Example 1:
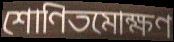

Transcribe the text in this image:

শোণিতমোক্ষণ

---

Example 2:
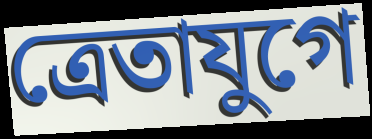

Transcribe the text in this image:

ত্রেতাযুগে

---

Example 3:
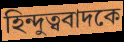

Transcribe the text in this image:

হিন্দুত্ববাদকে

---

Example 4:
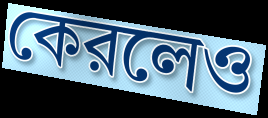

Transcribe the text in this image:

কেরলেও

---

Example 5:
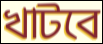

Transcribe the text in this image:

খাটবে